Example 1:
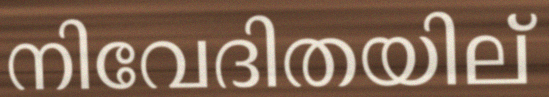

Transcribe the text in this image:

നിവേദിതയില്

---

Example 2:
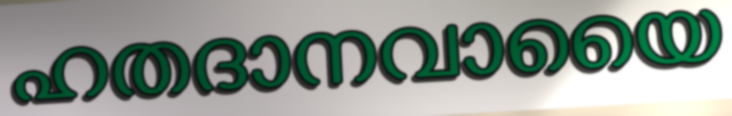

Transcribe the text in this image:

ഹതദാനവായൈ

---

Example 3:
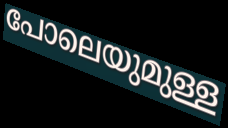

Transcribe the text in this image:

പോലെയുമുള്ള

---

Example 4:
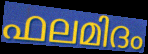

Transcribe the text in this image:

ഫലമിദം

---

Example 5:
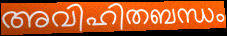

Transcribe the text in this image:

അവിഹിതബന്ധം